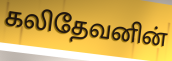
கலிதேவனின்